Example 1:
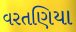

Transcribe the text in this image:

વરતણિયા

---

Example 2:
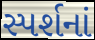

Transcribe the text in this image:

સ્પર્શનાં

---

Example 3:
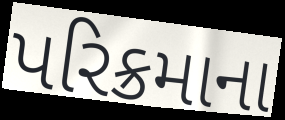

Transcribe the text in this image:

પરિક્રમાના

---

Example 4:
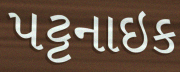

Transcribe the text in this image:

પટ્ટનાઇક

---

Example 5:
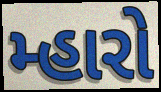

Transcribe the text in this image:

મ્હારો